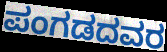
ಪಂಗಡದವರ